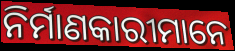
ନିର୍ମାଣକାରୀମାନେ